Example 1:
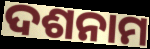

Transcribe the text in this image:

ଦଶନାମ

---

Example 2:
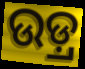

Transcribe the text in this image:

ଉଡ଼୍ର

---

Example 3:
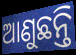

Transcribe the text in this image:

ଆଣୁଛନ୍ତି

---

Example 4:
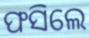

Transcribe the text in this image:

ଫସିଲେ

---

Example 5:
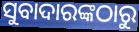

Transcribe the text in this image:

ସୁବାଦାରଙ୍କଠାରୁ